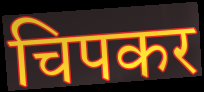
चिपकर